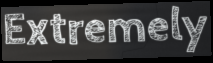
Extremely